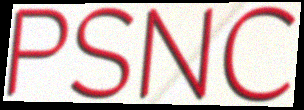
PSNC